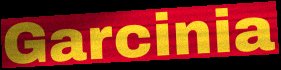
Garcinia